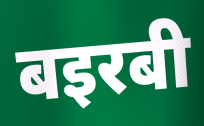
बइरबी